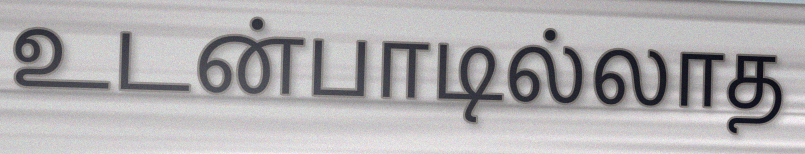
உடன்பாடில்லாத